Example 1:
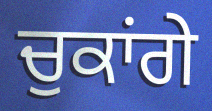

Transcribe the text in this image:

ਚੁਕਾਂਗੇ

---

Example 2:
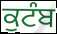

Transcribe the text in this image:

ਕੁਟੰਬ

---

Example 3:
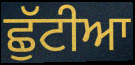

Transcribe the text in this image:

ਛੁੱਟੀਆ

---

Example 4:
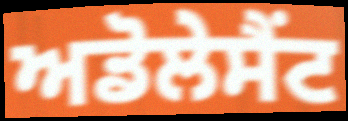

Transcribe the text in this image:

ਅਡੋਲੇਸੈਂਟ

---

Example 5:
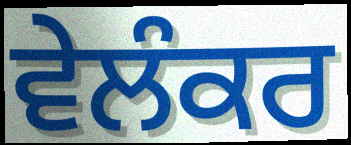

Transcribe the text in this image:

ਵੇਲੰਕਰ